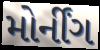
મોર્નીંગ